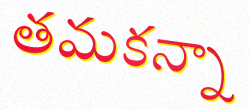
తమకన్నా